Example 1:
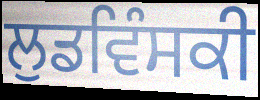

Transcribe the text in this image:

ਲੁਡਵਿੰਸਕੀ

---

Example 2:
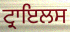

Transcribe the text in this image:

ਟ੍ਰਾਇਲਸ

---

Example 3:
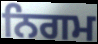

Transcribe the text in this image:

ਨਿਗਮ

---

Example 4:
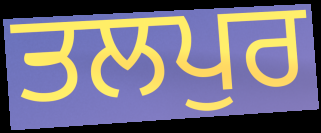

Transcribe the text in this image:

ਤਲਪੁਰ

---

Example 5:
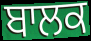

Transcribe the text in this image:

ਬਾਲਕ